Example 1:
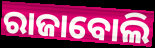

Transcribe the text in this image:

ରାଜାବୋଲି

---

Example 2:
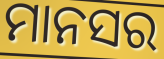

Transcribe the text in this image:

ମାନସର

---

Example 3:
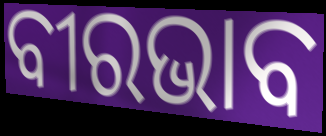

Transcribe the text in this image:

ବୀରଭାବ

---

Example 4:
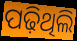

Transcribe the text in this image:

ପଢ଼ିଥିଲି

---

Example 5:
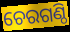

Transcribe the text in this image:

ଚେରଗଣ୍ଠି